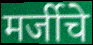
मर्जीचे